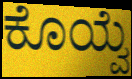
ಕೊಯ್ವೆ